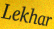
Lekhar